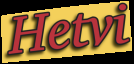
Hetvi